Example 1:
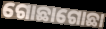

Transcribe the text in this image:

ଗୋଛାଗୋଛା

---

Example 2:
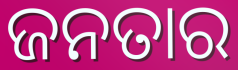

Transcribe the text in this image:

ଜନତାର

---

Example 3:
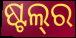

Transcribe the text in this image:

ଷ୍ଟଲ୍‌ର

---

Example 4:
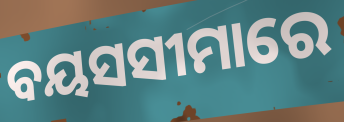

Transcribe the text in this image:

ବୟସସୀମାରେ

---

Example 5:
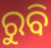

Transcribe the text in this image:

ରୁବି